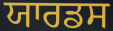
ਯਾਰਡਸ